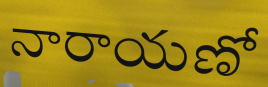
నారాయణో